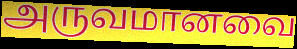
அருவமானவை